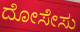
ದೋಸೇಸು